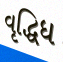
વૃદ્ધિધ